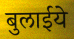
बुलाईये